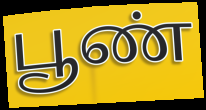
பூண்